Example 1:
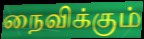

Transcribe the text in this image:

நைவிக்கும்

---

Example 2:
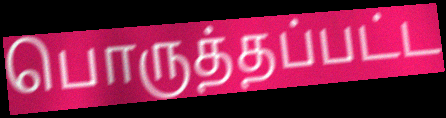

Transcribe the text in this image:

பொருத்தப்பட்ட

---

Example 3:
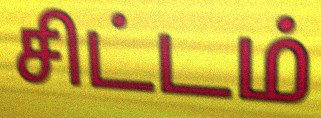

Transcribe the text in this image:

சிட்டம்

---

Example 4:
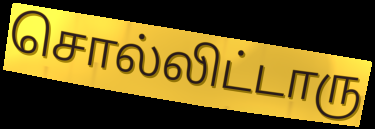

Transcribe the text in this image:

சொல்லிட்டாரு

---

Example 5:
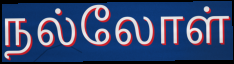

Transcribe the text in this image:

நல்லோள்